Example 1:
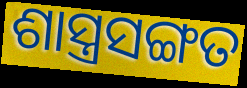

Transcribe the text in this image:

ଶାସ୍ତ୍ରସଙ୍ଗତ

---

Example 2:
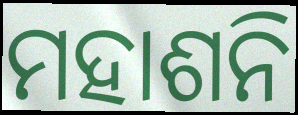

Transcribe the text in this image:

ମହାଶନି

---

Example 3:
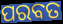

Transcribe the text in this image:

ପରବତ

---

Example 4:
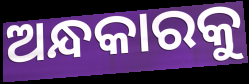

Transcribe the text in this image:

ଅନ୍ଧକାରକୁ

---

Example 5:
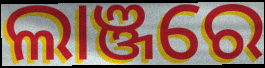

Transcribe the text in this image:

ଲାଞ୍ଜରେ